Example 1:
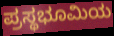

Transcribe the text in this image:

ಪ್ರಸ್ಥಭೂಮಿಯ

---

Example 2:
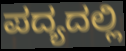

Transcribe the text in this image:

ಪದ್ಯದಲ್ಲಿ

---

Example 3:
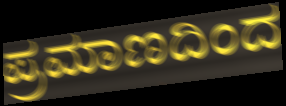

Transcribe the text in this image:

ಪ್ರಮಾಣದಿಂದ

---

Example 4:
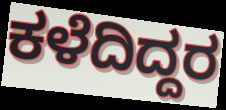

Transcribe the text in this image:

ಕಳೆದಿದ್ದರ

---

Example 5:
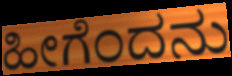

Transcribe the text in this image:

ಹೀಗೆಂದನು